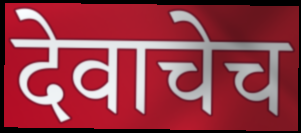
देवाचेच